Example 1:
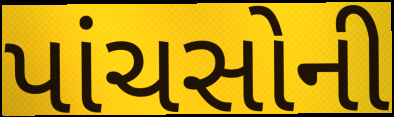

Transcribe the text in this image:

પાંચસોની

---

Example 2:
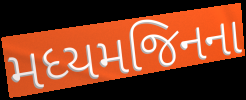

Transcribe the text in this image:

મધ્યમજિનના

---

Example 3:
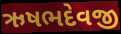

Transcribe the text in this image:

ઋષભદેવજી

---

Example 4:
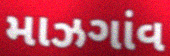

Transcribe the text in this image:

માઝગાંવ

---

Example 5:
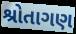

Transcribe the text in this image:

શ્રોતાગણ